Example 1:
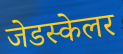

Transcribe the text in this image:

जेडस्केलर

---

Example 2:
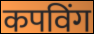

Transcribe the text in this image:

कपविंग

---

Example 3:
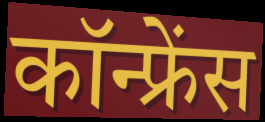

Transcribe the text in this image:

कॉन्फ्रेंस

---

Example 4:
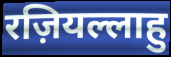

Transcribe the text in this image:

रज़ियल्लाहु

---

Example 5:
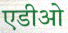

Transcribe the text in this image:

एडीओ